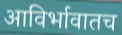
आविर्भावातच